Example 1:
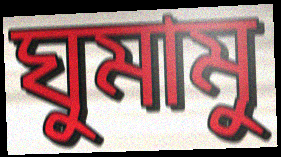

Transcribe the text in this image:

ঘুমামু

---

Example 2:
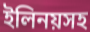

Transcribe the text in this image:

ইলিনয়সহ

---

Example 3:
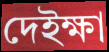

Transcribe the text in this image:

দেইক্ষা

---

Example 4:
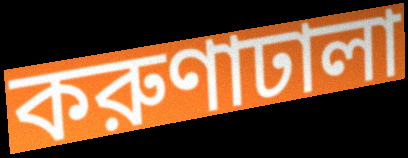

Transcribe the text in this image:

করুণাঢালা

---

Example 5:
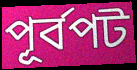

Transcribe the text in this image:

পূর্বপট